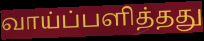
வாய்ப்பளித்தது